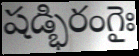
షడ్భిరంగైః